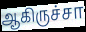
ஆகிருச்சா